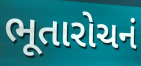
ભૂતારોચનં